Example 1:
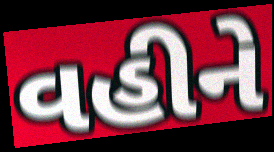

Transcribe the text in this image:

વહીને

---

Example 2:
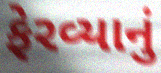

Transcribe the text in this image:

ફેરવ્યાનું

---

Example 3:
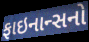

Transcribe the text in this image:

ફાઇનાન્સનો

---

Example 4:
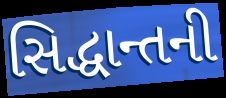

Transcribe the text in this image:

સિદ્ધાન્તની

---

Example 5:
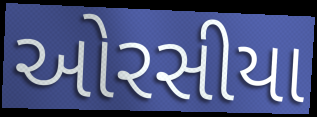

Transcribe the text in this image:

ઓરસીયા